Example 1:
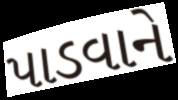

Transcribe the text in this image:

પાડવાને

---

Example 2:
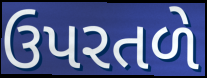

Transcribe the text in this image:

ઉપરતળે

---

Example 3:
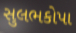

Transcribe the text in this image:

સુલભકોપા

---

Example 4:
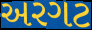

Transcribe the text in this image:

અરગટ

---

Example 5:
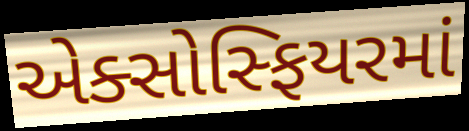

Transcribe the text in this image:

એક્સોસ્ફિયરમાં